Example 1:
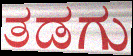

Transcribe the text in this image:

ತಡಗು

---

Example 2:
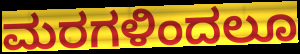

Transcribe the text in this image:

ಮರಗಳಿಂದಲೂ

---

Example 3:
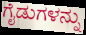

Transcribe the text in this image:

ಗೈಡುಗಳನ್ನು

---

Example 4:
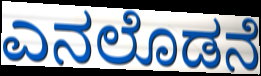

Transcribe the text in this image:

ಎನಲೊಡನೆ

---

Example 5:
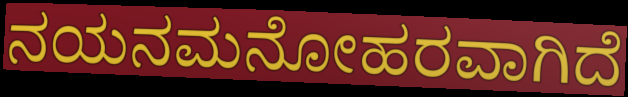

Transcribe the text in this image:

ನಯನಮನೋಹರವಾಗಿದೆ